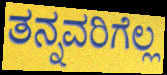
ತನ್ನವರಿಗೆಲ್ಲ